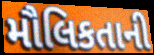
મૌલિકતાની